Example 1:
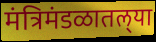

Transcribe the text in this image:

मंत्रिमंडळातल्या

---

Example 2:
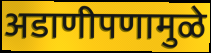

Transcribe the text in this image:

अडाणीपणामुळे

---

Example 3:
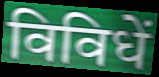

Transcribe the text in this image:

विविधें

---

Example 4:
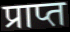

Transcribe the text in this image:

प्राप्‍त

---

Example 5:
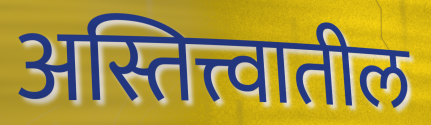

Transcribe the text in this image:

अस्तित्त्वातील